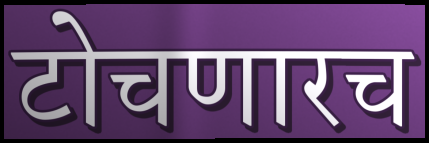
टोचणारच